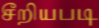
சீறியபடி